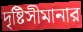
দৃষ্টিসীমানার